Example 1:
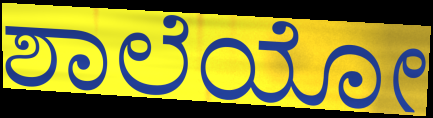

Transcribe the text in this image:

ಶಾಲೆಯೋ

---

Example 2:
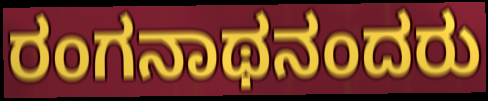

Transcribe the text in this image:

ರಂಗನಾಥನಂದರು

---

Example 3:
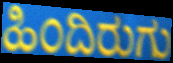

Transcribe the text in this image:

ಹಿಂದಿರುಗು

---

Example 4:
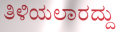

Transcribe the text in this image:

ತಿಳಿಯಲಾರದ್ದು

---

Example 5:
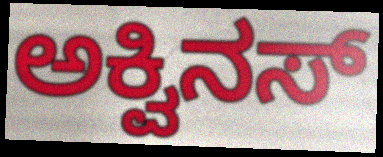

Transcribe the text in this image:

ಅಕ್ವಿನಸ್